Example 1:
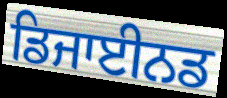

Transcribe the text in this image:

ਡਿਜਾਈਨਡ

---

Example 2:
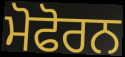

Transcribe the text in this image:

ਮੋਫੋਰਨ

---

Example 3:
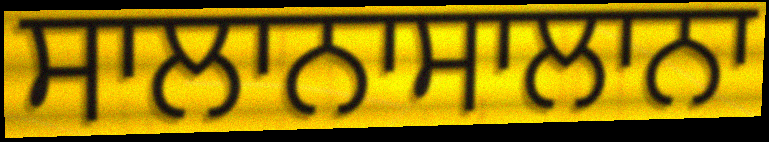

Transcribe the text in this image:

ਸਾਲਾਨਾਸਾਲਾਨਾ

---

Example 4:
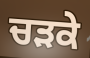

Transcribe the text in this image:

ਚੜਕੇ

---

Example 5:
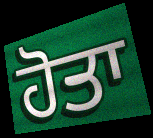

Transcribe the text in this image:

ਹੋਤਾ